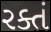
રક્તં